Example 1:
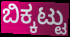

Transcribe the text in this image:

ಬಿಕ್ಕಟ್ಟು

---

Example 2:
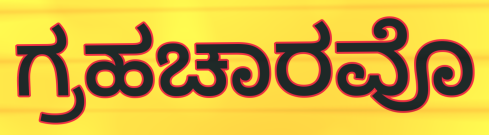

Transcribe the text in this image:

ಗ್ರಹಚಾರವೊ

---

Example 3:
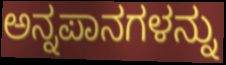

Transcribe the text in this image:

ಅನ್ನಪಾನಗಳನ್ನು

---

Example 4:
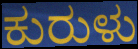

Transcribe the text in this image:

ಕುರುಳು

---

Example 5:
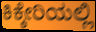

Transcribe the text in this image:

ಕಿಕ್ಕೇರಿಯಲ್ಲಿ